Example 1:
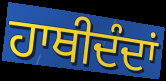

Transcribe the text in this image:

ਹਾਥੀਦੰਦਾਂ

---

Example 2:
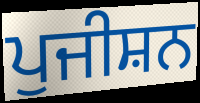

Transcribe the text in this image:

ਪੁਜੀਸ਼ਨ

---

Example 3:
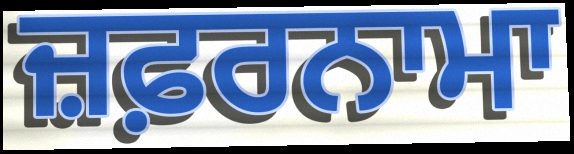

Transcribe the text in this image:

ਜ਼ਫ਼ਰਨਾਮਾ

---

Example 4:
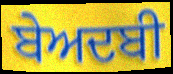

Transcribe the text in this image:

ਬੇਅਦਬੀ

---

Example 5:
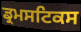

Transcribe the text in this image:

ਡ੍ਰਮਸਟਿਕਸ